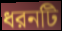
ধরনটি